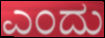
ಎಂದು